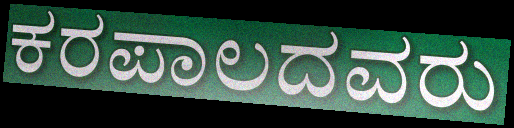
ಕರಪಾಲದವರು